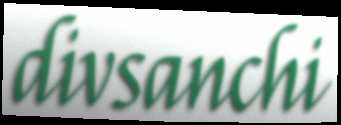
divsanchi